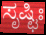
ಸೃಷ್ಟಿಃ